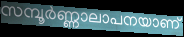
സമ്പൂർണ്ണാലാപനയാണ്